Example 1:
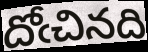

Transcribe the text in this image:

దోఁచినది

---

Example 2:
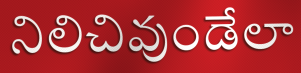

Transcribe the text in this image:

నిలిచివుండేలా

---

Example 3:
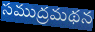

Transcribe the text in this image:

సముద్రమథన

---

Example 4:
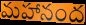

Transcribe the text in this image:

మహానంద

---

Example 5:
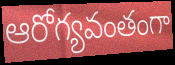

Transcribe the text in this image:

ఆరోగ్యవంతంగా